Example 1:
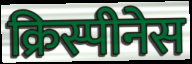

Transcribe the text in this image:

क्रिस्पीनेस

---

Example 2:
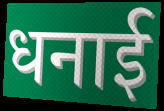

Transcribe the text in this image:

धनाई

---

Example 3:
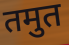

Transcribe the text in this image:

तमुत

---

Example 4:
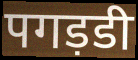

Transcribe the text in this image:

पगड़डी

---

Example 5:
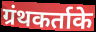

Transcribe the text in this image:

ग्रंथकर्ताके